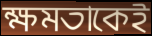
ক্ষমতাকেই